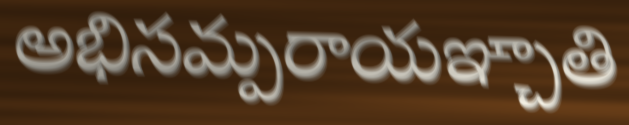
అభిసమ్పరాయఞ్చాతి